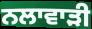
ਨਲਾਵਾੜੀ